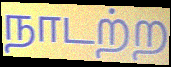
நாடற்ற